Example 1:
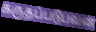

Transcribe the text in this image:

கருதப்படுபவன்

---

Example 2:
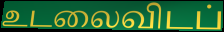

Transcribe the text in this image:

உடலைவிடப்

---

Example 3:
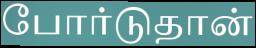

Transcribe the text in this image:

போர்டுதான்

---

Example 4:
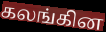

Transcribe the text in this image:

கலங்கின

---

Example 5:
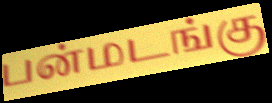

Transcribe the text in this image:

பன்மடங்கு